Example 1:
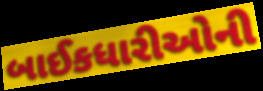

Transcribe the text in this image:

બાઈકધારીઓની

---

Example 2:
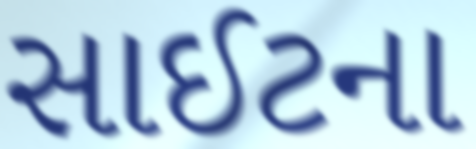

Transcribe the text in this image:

સાઈટના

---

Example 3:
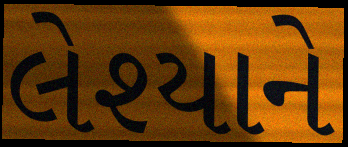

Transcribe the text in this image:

લેશ્યાને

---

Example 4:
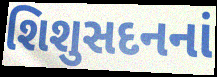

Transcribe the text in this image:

શિશુસદનનાં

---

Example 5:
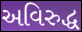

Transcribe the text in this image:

અવિરુદ્ધ